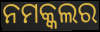
ନମକ୍କଲର